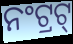
ନଂଟ୍ରଟ୍